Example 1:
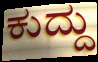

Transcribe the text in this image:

ಕುದ್ದು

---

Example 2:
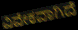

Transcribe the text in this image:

ವಿವೇಕವಾಗಿದೆ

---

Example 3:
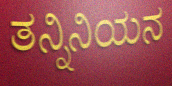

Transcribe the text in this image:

ತನ್ನಿನಿಯನ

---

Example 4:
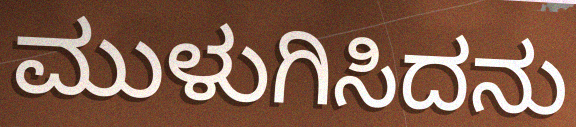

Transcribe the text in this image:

ಮುಳುಗಿಸಿದನು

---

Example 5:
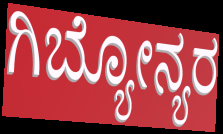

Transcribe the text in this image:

ಗಿಬ್ಯೋನ್ಯರ